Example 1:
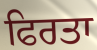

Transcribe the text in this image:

ਫਿਰਤਾ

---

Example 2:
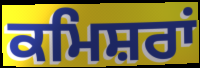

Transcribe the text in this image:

ਕਮਿਸ਼ਰਾਂ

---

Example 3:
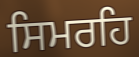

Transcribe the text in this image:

ਸਿਮਰਹਿ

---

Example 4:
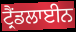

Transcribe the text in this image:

ਟ੍ਰੈਂਡਲਾਈਨ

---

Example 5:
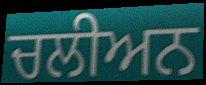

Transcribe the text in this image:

ਚਲੀਅਨ